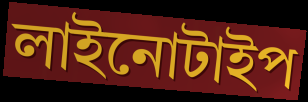
লাইনোটাইপ